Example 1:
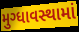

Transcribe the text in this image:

મુગ્ધાવસ્થામાં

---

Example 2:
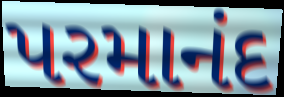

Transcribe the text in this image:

પરમાનંદ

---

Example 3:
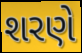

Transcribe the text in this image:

શરણે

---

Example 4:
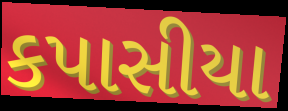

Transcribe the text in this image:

કપાસીયા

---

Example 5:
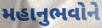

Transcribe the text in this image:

મહાનુભવોને